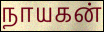
நாயகன்